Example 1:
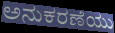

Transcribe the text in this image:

ಅನುಕರಣೆಯು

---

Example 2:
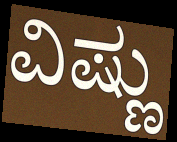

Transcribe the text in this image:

ವಿಷ್ಣು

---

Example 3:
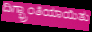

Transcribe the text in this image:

ದಿಗ್ಭ್ರಾಂತಿಯಾಯಿತು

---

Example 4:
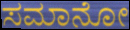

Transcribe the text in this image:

ಸಮಾನೋ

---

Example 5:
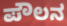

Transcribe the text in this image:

ಪೌಲನ